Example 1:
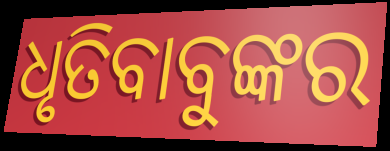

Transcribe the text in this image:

ଧୃତିବାବୁଙ୍କର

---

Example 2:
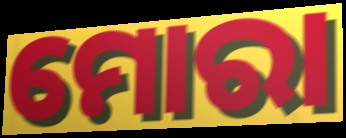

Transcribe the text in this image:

ମୋରା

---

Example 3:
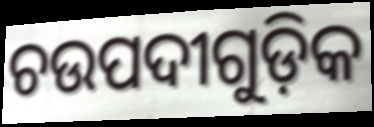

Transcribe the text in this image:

ଚଉପଦୀଗୁଡ଼ିକ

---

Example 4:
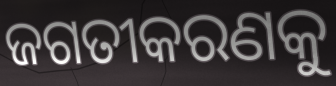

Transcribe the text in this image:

ଜଗତୀକରଣକୁ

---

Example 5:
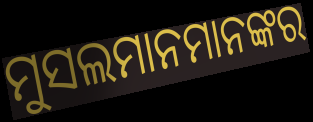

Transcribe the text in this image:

ମୁସଲମାନମାନଙ୍କର